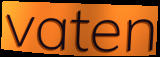
vaten